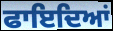
ਫਾਇਦਿਆਂ